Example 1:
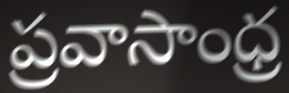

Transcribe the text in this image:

ప్రవాసాంధ్ర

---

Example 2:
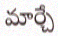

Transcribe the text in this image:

మార్చే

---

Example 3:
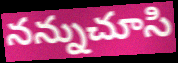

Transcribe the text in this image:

నన్నుచూసి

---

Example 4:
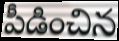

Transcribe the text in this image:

పీడించిన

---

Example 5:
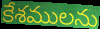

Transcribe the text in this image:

కేశములను